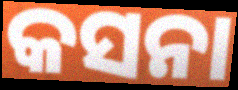
କସନା